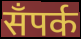
सँपर्क